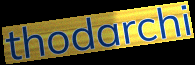
thodarchi